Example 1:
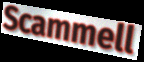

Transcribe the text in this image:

Scammell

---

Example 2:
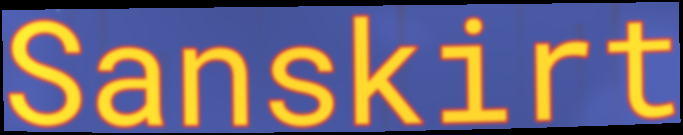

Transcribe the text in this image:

Sanskirt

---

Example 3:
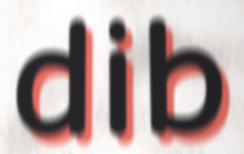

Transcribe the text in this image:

dib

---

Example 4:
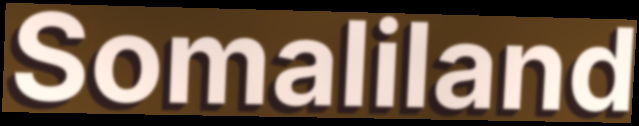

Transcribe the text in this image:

Somaliland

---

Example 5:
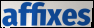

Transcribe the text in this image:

affixes